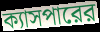
ক্যাসপারের